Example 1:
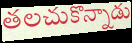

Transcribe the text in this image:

తలచుకొన్నాడు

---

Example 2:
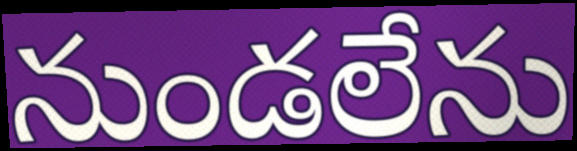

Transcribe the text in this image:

నుండలేను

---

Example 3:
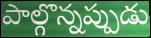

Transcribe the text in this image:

పాల్గొన్నప్పుడు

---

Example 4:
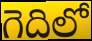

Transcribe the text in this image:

గెదిలో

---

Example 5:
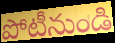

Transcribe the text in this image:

పోటీనుండి